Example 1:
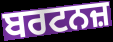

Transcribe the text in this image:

ਬਰਟਨਜ਼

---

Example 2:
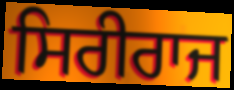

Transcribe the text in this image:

ਸਿਰੀਰਾਜ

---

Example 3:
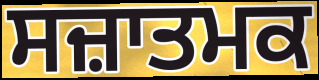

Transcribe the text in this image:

ਸਜ਼ਾਤਮਕ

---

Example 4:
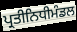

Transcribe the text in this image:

ਪ੍ਰਤੀਨਿਧੀਮੰਡਲ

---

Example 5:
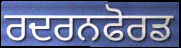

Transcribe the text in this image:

ਰਦਰਨਫੋਰਡ